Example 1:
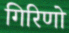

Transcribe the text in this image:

गिरिणो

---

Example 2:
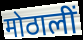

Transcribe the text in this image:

मोठालीं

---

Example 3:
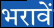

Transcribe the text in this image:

भरावें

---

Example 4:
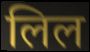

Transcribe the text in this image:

लिल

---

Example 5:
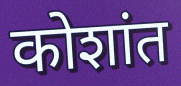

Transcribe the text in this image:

कोशांत